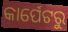
କାର୍ପେଟରୁ